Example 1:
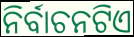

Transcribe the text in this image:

ନିର୍ବାଚନଟିଏ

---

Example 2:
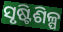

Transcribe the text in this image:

ସୃଷ୍ଟିଶିଳ୍ପ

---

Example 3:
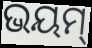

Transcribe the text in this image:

ଭୟମ୍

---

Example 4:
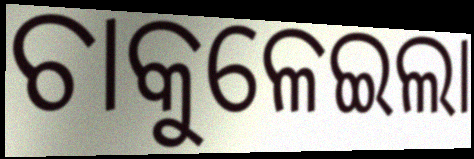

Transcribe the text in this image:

ଚାକୁଳେଇଲା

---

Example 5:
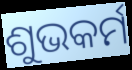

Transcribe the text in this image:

ଶୁଭକର୍ମ